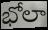
భోలా